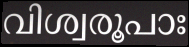
വിശ്വരൂപാഃ